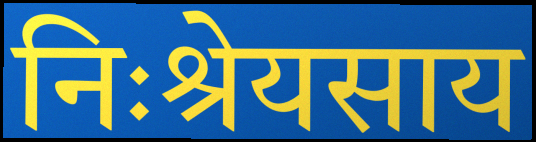
निःश्रेयसाय